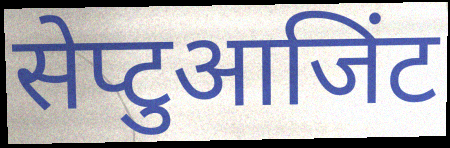
सेप्टुआजिंट